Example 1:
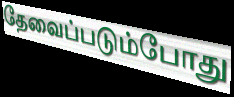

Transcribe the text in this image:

தேவைப்படும்போது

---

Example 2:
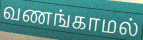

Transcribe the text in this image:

வணங்காமல்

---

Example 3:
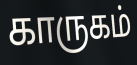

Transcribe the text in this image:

காருகம்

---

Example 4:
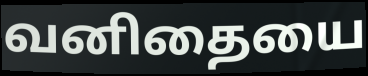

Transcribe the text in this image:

வனிதையை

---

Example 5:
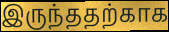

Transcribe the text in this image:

இருந்ததற்காக